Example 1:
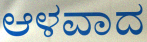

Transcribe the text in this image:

ಆಳವಾದ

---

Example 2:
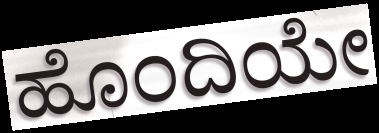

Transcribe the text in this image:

ಹೊಂದಿಯೇ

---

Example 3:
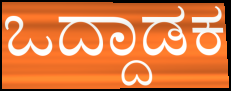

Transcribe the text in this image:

ಒದ್ದಾಡಕ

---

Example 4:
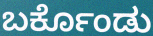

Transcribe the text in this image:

ಬರ್ಕೊಂಡು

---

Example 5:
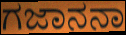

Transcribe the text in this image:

ಗಜಾನನಾ